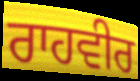
ਰਾਹਵੀਰ